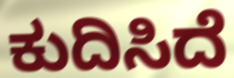
ಕುದಿಸಿದೆ